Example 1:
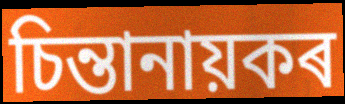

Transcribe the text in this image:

চিন্তানায়কৰ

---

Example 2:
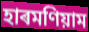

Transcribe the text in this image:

হাৰমণিয়াম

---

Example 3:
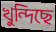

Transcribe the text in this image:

খুন্দিছে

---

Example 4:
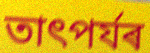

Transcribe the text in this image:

তাৎপৰ্যৰ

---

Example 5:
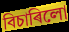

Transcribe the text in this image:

বিচাৰিলো